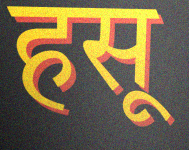
हसू